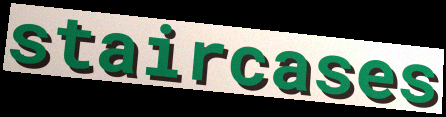
staircases